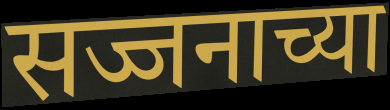
सज्जनाच्या